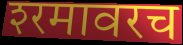
श्रमावरच